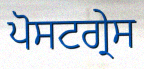
ਪੋਸਟਗ੍ਰੇਸ